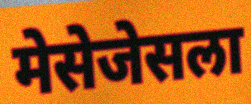
मेसेजेसला